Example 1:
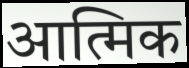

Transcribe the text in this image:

आत्मिक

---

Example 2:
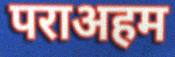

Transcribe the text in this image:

पराअहम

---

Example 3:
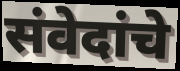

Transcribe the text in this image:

संवेदांचे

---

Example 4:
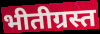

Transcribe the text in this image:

भीतीग्रस्त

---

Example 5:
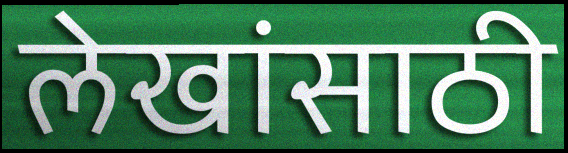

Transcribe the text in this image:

लेखांसाठी